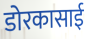
डोरकासाई